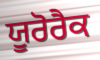
ਯੂਰੋਰੈਕ